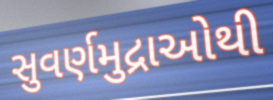
સુવર્ણમુદ્રાઓથી